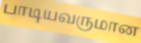
பாடியவருமான